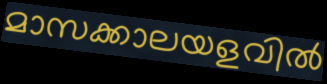
മാസക്കാലയളവിൽ